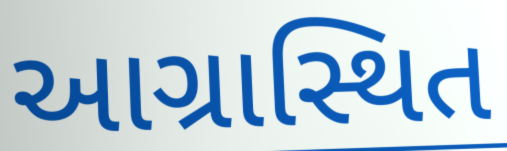
આગ્રાસ્થિત